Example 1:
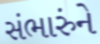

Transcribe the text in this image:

સંભારુંને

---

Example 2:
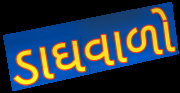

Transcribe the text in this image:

ડાઘવાળો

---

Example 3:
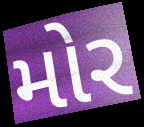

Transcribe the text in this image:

મોર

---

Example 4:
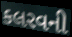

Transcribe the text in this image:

કલરવની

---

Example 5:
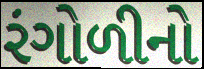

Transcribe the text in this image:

રંગોળીનો